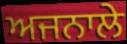
ਅਜਨਾਲੇ